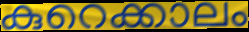
കുറെക്കാലം